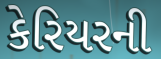
કેરિયરની